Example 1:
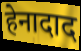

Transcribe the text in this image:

हेनादाद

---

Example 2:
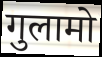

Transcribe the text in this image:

गुलामो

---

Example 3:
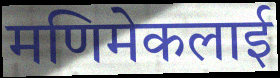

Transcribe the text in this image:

मणिमेकलाई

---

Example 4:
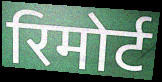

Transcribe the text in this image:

रिमोर्ट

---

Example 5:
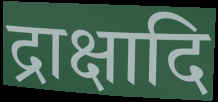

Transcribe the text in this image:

द्राक्षादि